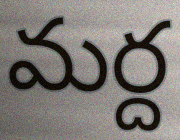
మర్ద